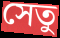
সেতু